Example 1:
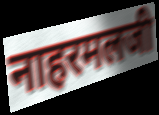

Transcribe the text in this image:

नाहरमलजी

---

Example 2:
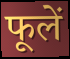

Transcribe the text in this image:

फूलें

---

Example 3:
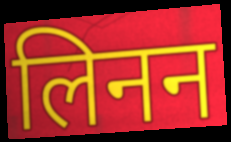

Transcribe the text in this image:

लिनन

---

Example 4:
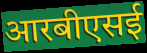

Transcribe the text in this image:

आरबीएसई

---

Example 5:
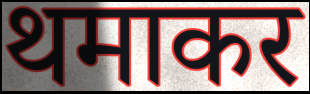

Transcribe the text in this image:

थमाकर